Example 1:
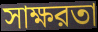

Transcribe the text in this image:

সাক্ষরতা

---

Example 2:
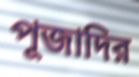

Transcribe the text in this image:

পূজাদির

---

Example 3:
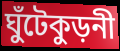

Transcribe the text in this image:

ঘুঁটেকুড়নী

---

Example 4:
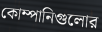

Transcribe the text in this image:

কোম্পানিগুলোর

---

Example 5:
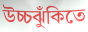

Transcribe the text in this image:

উচ্চঝুঁকিতে